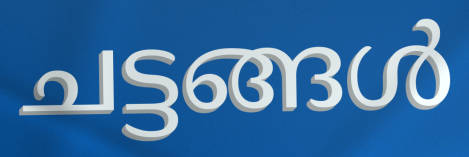
ചട്ടങ്ങൾ